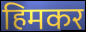
हिमकर